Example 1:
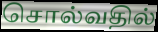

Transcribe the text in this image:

சொல்வதில்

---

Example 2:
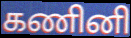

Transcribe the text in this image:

கணினி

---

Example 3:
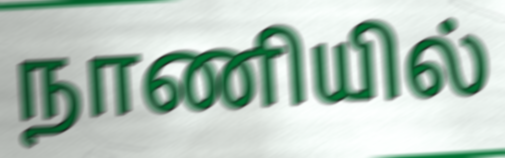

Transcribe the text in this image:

நாணியில்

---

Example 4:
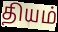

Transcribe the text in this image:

தியம்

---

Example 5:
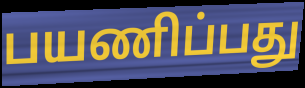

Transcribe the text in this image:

பயணிப்பது